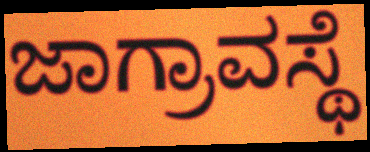
ಜಾಗ್ರಾವಸ್ಥೆ